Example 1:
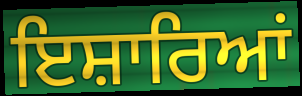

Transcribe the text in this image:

ਇਸ਼ਾਰਿਆਂ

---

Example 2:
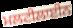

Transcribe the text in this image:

ਮਲਟੀਲਾਈਨ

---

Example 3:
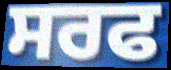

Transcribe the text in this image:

ਸਰਫ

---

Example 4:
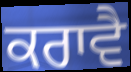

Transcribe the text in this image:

ਕਰਾਵੈ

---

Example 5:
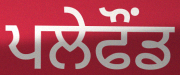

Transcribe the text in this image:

ਪਲੇਫੌਂਡ